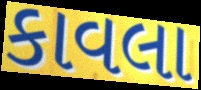
કાવલા